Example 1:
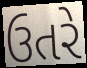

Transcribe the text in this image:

ઉતરે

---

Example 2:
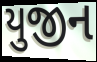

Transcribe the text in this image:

યુજીન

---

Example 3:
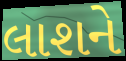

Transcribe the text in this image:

લાશને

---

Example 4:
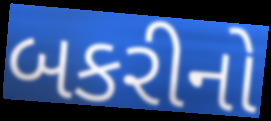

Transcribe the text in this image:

બકરીનો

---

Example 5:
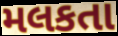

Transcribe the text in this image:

મલકતા